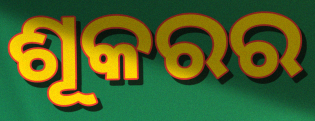
ଶୂକରର